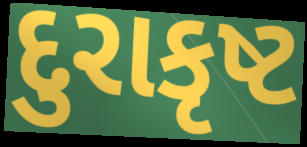
દુરાકૃષ્ટ